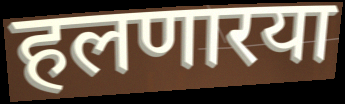
हलणारया